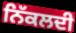
ਨਿੱਕਲਦੀ